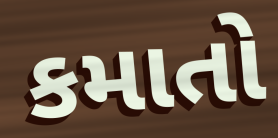
કમાતો